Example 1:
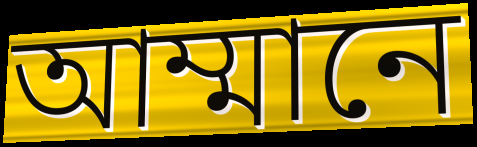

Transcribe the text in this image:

আম্মানে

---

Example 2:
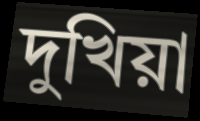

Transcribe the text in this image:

দুখিয়া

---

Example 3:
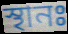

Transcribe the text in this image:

স্থানঃ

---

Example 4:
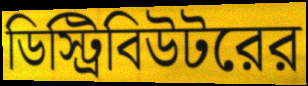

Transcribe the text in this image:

ডিস্ট্রিবিউটরের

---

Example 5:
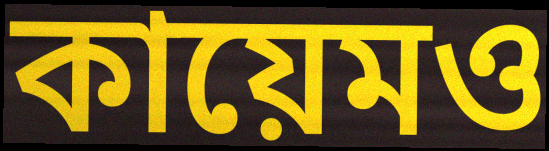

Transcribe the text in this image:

কায়েমও